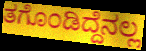
ತಗೊಂಡಿದ್ದೆನಲ್ಲ